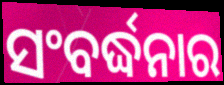
ସଂବର୍ଦ୍ଧନାର